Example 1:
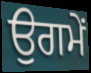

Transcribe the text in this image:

ਉਗਮੇਂ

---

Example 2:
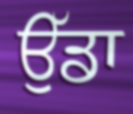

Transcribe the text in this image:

ਉੱਡਾ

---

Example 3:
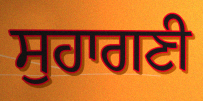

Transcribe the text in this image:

ਸੁਹਾਗਣੀ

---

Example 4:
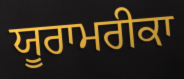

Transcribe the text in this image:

ਯੂਰਾਮਰੀਕਾ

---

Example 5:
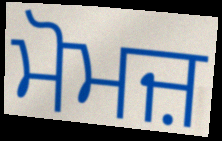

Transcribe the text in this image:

ਮੋਮਜ਼